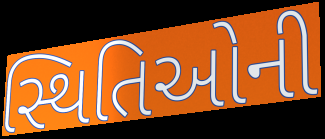
સ્થિતિઓની